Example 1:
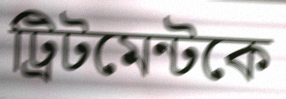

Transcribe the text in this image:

ট্রিটমেন্টকে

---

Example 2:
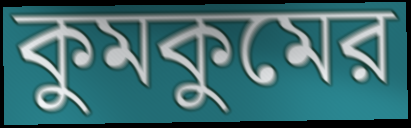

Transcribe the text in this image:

কুমকুমের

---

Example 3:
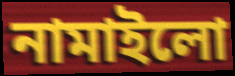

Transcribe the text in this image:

নামাইলো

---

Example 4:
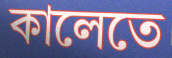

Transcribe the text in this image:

কালেতে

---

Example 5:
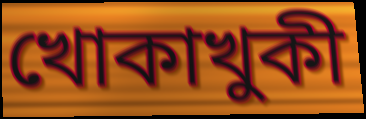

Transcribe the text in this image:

খোকাখুকী